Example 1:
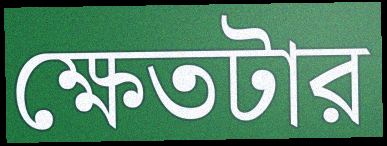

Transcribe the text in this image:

ক্ষেতটার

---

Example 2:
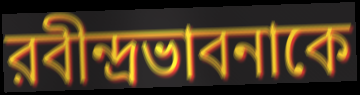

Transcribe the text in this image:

রবীন্দ্রভাবনাকে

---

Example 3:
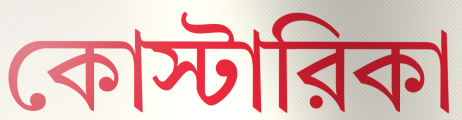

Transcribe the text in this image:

কোস্টারিকা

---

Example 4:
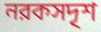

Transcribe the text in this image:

নরকসদৃশ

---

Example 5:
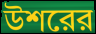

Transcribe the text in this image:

উশরের